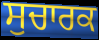
ਸੁਚਾਰਕ